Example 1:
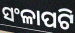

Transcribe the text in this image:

ସଂଳାପଟି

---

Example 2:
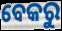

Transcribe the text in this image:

ବେକରୁ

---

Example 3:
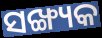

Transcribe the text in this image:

ସଙ୍ଖ୍ୟକ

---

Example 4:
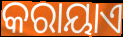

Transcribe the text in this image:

କରାୟାଏ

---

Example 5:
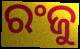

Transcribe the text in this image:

ରଂଜୁ